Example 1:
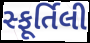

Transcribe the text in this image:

સ્ફૂર્તિલી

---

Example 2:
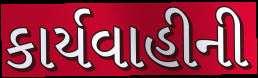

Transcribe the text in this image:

કાર્યવાહીની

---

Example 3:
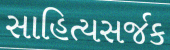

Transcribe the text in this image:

સાહિત્યસર્જક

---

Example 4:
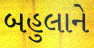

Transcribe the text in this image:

બહુલાને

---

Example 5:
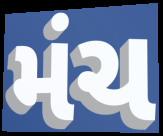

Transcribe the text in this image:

મંચ